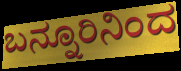
ಬನ್ನೂರಿನಿಂದ